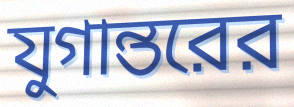
যুগান্তরের